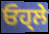
ਓਹ੍ਲੇ